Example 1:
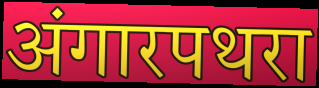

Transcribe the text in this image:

अंगारपथरा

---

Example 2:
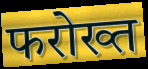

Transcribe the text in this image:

फरोख्‍त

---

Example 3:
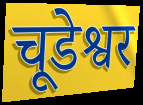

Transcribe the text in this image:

चूडेश्वर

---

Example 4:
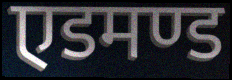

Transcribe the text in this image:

एडमण्ड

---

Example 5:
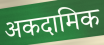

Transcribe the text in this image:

अकदामिक